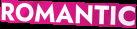
ROMANTIC